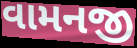
વામનજી